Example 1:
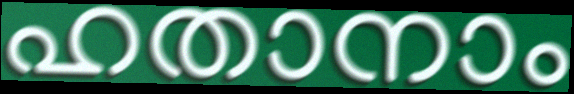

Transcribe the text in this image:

ഹതാനാം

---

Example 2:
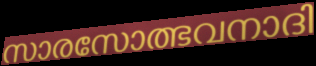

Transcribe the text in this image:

സാരസോത്ഭവനാദി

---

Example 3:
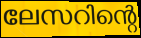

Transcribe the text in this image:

ലേസറിന്റെ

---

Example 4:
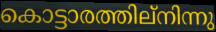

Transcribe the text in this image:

കൊട്ടാരത്തില്നിന്നു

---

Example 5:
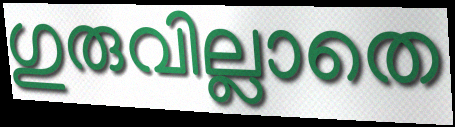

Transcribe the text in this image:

ഗുരുവില്ലാതെ